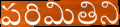
పరిమితిని